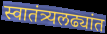
स्वातंत्र्यलढ्यांत